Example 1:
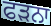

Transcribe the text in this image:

ਫੜਨਾ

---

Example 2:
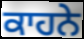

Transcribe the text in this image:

ਕਾਹਨੇ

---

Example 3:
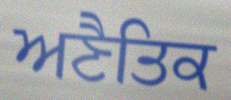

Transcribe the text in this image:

ਅਣੈਤਿਕ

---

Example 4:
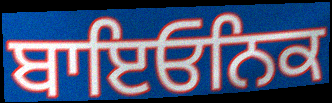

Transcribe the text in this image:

ਬਾਇਓਨਿਕ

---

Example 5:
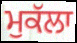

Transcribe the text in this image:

ਮੁਕੱਲਾ